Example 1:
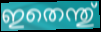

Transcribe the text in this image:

ഇതെന്തു്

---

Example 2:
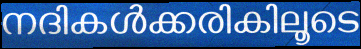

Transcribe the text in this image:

നദികൾക്കരികിലൂടെ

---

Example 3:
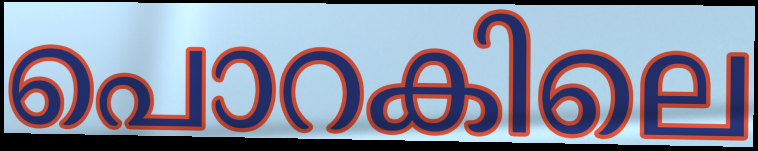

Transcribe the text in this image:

പൊറകിലെ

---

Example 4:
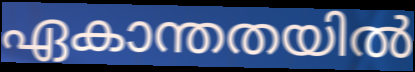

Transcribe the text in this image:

ഏകാന്തതയിൽ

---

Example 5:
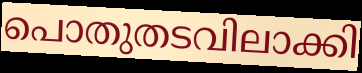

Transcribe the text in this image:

പൊതുതടവിലാക്കി